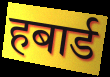
हबार्ड